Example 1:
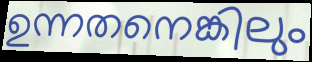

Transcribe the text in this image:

ഉന്നതനെങ്കിലും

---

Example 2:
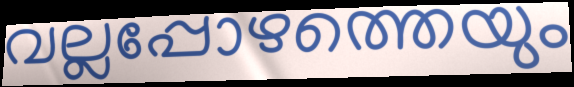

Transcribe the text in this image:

വല്ലപ്പോഴത്തെയും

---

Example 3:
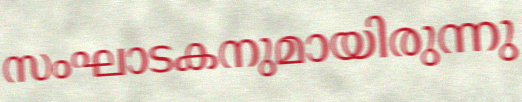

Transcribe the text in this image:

സംഘാടകനുമായിരുന്നു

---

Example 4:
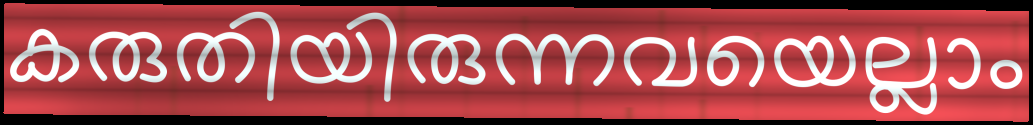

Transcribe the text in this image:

കരുതിയിരുന്നവയെല്ലാം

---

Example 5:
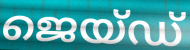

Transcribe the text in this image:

ജെയ്ഡ്